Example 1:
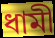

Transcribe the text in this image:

ধামী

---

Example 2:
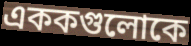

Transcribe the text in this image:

এককগুলোকে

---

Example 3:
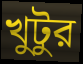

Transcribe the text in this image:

খুটুর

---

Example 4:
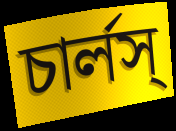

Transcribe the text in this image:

চার্লস্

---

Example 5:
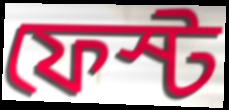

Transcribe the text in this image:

ফেস্ট